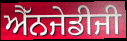
ਐੱਨਜੇਡੀਜੀ